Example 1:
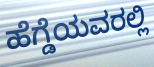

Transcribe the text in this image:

ಹೆಗ್ಡೆಯವರಲ್ಲಿ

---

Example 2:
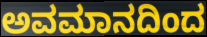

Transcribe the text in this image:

ಅವಮಾನದಿಂದ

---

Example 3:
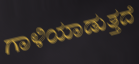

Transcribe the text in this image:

ಗಾಳಿಯಾಡುತ್ತದೆ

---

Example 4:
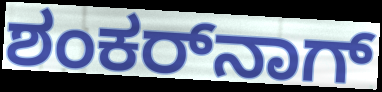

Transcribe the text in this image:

ಶಂಕರ್‌ನಾಗ್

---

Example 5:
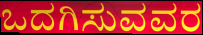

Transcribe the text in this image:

ಒದಗಿಸುವವರ